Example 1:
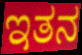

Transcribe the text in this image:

ಇತನ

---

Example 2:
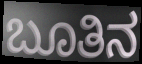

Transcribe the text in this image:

ಬೂತಿನ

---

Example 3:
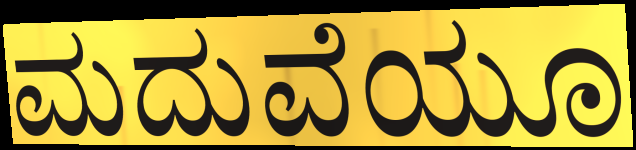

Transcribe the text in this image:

ಮದುವೆಯೂ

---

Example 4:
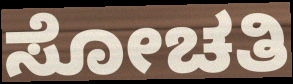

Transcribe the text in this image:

ಸೋಚತಿ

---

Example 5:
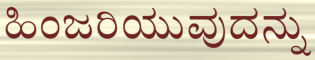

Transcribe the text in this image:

ಹಿಂಜರಿಯುವುದನ್ನು